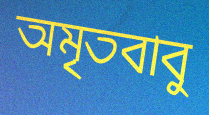
অমৃতবাবু